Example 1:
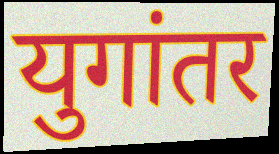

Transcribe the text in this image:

युगांतर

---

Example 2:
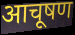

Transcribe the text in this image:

आचूषण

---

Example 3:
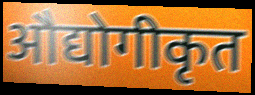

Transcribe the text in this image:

औद्योगीकृत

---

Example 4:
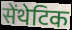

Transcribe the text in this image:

सेंथेटिक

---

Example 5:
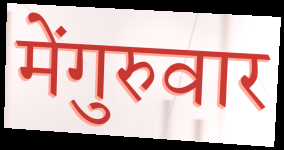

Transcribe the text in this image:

मेंगुरुवार